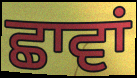
ਛਾਵਾਂ